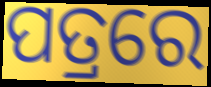
ପତ୍ରରେ